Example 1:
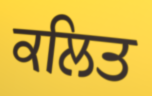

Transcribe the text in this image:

ਕਲਿਤ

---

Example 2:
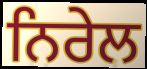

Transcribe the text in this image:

ਨਿਰੇਲ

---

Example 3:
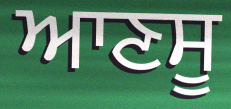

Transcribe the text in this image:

ਆਣਸੂ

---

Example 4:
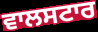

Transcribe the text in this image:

ਵਾਲਸਟਾਰ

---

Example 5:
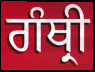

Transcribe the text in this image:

ਗੰਥ੍ਰੀ